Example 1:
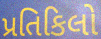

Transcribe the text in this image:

પ્રતિકિલો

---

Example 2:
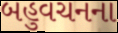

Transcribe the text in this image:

બહુવચનના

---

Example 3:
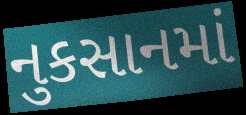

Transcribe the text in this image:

નુકસાનમાં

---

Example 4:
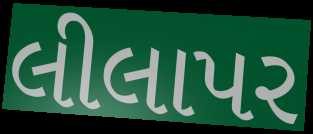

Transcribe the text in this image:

લીલાપર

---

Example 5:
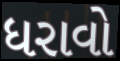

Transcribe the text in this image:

ધરાવો